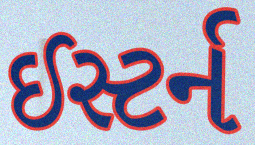
ઈસ્ટર્ન